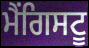
ਮੈਂਗਿਸਟੂ